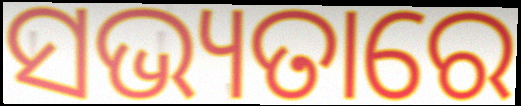
ସଭ୍ୟତାରେ